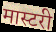
मास्टरी